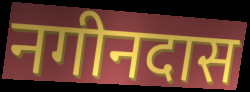
नगीनदास